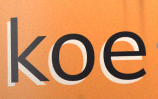
koe